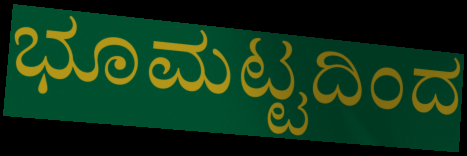
ಭೂಮಟ್ಟದಿಂದ